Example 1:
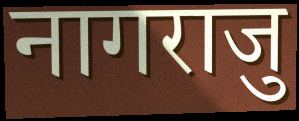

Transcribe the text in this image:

नागराजु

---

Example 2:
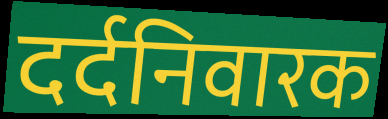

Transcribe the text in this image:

दर्दनिवारक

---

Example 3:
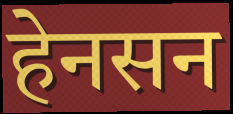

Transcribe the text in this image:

हेनसन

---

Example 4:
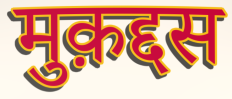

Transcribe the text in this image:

मुक़द्दस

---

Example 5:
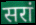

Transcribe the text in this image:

सरां